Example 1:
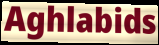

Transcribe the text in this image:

Aghlabids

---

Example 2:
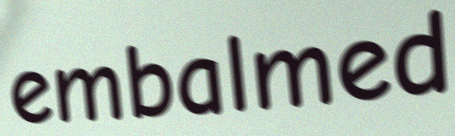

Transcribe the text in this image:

embalmed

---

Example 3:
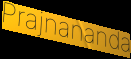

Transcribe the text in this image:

Prajnananda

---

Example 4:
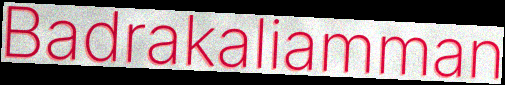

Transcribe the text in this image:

Badrakaliamman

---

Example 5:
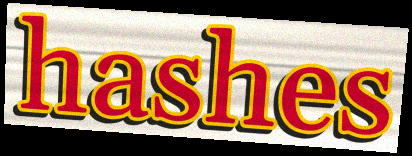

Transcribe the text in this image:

hashes